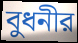
বুধনীর